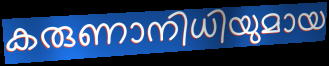
കരുണാനിധിയുമായ